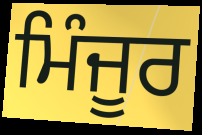
ਮਿੰਜੂਰ